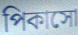
পিকাসো